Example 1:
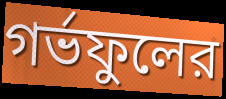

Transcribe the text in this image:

গর্ভফুলের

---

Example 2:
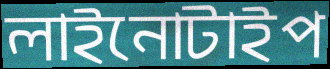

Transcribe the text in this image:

লাইনোটাইপ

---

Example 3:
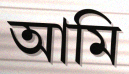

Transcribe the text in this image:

আমি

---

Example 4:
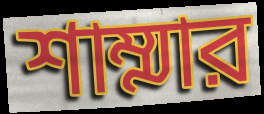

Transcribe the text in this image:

শাম্মার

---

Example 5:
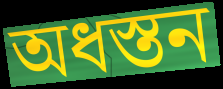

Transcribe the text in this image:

অধস্তন